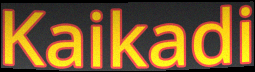
Kaikadi